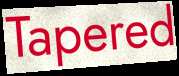
Tapered